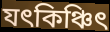
যৎকিঞ্চিৎ